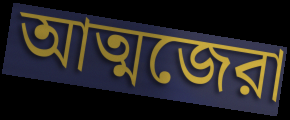
আত্মজেরা